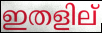
ഇതളില്